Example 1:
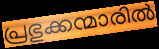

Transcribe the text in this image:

പ്രഭുക്കന്മാരിൽ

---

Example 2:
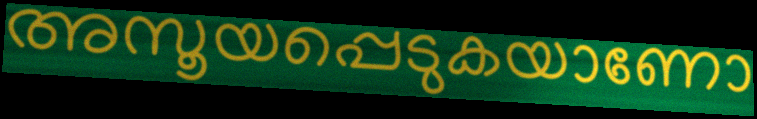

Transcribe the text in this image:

അസൂയപ്പെടുകയാണോ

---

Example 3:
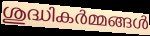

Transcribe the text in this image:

ശുദ്ധികർമ്മങ്ങൾ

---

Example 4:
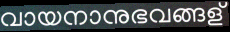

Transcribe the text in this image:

വായനാനുഭവങ്ങള്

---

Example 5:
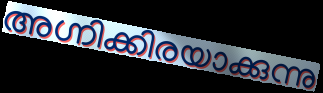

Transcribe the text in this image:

അഗ്നിക്കിരയാക്കുന്നു